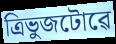
ত্ৰিভুজটোৱে